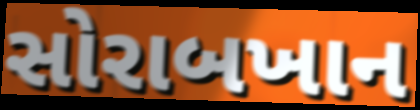
સોરાબખાન